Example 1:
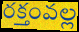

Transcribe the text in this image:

రక్తంవల్ల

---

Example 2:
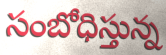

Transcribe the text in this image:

సంబోధిస్తున్న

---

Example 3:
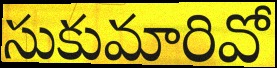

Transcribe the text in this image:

సుకుమారివో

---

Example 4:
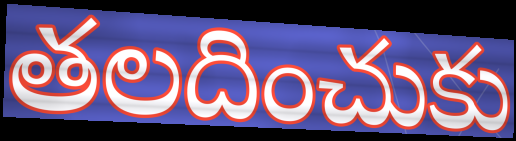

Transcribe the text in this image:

తలదించుకు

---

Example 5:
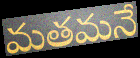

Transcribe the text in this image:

మతమనే